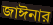
জাঈনার